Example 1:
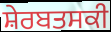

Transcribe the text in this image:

ਸ਼ੇਰਬਤਸਕੀ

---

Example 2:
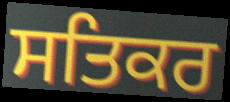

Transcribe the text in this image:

ਸਤਿਕਰ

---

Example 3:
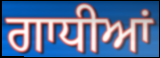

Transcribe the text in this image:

ਗਾਧੀਆਂ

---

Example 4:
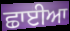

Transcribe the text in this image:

ਛਾਈਆ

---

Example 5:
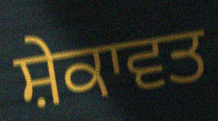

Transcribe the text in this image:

ਸ਼ੇਕਾਵਤ